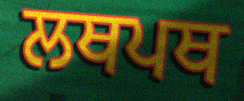
ਲਥਪਥ